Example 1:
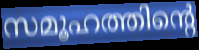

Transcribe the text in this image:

സമൂഹത്തിന്റെ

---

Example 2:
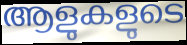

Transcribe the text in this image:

ആളുകളുടെ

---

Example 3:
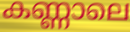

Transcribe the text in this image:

കണ്ണാലെ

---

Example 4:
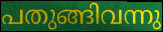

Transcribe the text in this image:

പതുങ്ങിവന്നു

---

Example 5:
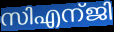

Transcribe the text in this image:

സിഎന്ജി